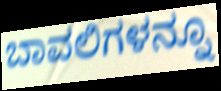
ಬಾವಲಿಗಳನ್ನೂ